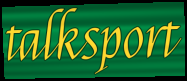
talksport